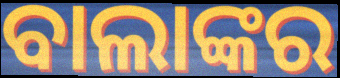
ବାଲାଙ୍କର